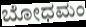
ಬೋಧಮಂ